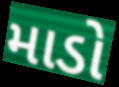
માડો